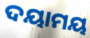
ଦୟାମୟ